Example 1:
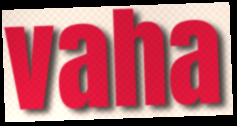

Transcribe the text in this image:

vaha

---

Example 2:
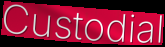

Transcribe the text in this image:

Custodial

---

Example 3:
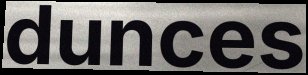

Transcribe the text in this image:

dunces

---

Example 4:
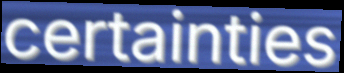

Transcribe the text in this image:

certainties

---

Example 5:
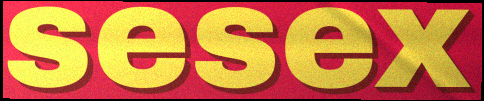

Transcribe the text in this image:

sesex